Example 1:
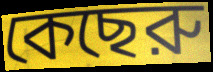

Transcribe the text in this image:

কেছেৰু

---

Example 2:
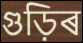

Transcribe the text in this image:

গুড়িৰ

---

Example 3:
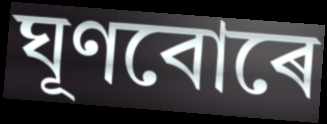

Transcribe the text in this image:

ঘূণবোৰে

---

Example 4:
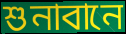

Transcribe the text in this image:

শুনাবানে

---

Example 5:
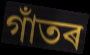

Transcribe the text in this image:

গাঁতৰ